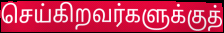
செய்கிறவர்களுக்குத்